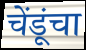
चेंडूंचा